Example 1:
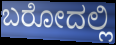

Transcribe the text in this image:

ಬರೋದಲ್ಲಿ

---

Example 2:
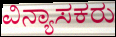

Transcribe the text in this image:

ವಿನ್ಯಾಸಕರು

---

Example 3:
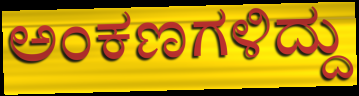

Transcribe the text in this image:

ಅಂಕಣಗಳಿದ್ದು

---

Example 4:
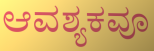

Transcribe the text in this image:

ಆವಶ್ಯಕವೂ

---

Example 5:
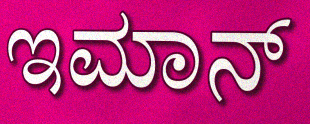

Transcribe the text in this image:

ಇಮಾನ್